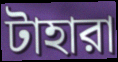
টাহারা